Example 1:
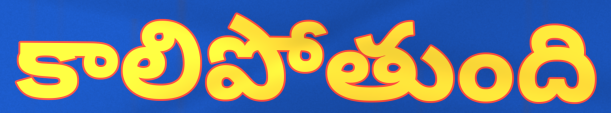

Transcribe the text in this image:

కాలిపోతుంది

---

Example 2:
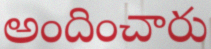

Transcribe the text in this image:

అందించారు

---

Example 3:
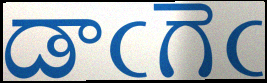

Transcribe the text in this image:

డాఁగెఁ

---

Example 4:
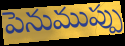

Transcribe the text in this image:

పెనుముప్పు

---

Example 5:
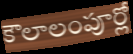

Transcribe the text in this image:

కౌలాలంపూర్లో